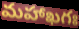
మహాఖగః